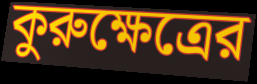
কুরুক্ষেত্রের